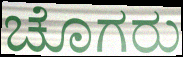
ಚೊಗರು